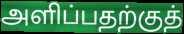
அளிப்பதற்குத்